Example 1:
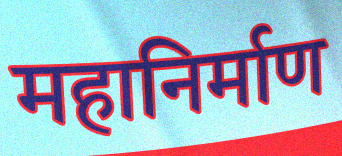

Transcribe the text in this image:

महानिर्माण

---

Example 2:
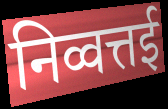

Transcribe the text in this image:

निव्वत्तई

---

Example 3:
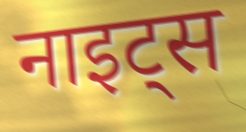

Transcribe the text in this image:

नाइट्स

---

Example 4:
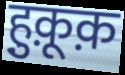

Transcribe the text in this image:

ह़ुक़ूक़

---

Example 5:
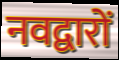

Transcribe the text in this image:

नवद्वारों